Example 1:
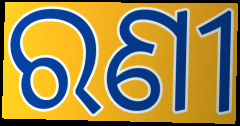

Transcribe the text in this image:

ରଣୀ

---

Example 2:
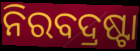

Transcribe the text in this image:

ନିରବଦ୍ରଷ୍ଟା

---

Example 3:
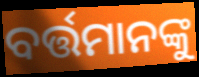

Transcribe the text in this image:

ବର୍ତ୍ତମାନଙ୍କୁ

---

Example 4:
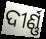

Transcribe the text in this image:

ଦୀର୍ଣ୍ଣ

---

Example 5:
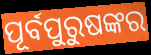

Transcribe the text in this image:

ପୂର୍ବପୁରୁଷଙ୍କର